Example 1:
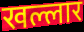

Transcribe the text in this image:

खल्लार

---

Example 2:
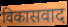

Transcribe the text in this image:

विकासवाद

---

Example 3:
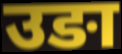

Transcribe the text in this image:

उङा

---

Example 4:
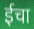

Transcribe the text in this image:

ईचा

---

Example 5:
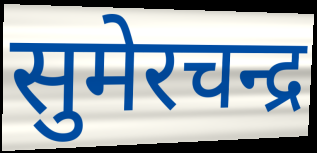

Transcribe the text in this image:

सुमेरचन्द्र